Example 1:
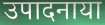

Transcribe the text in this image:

उपादनाया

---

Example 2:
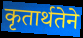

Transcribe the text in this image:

कृतार्थतेने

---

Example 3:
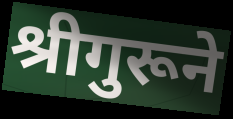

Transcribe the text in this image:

श्रीगुरूने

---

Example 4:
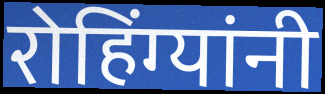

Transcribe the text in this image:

रोहिंग्यांनी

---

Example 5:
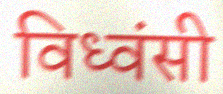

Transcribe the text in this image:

विध्वंसी